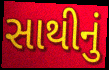
સાથીનું